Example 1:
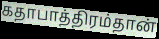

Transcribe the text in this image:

கதாபாத்திரம்தான்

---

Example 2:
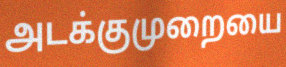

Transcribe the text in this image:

அடக்குமுறையை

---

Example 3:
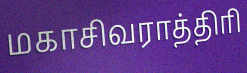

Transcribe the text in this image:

மகாசிவராத்திரி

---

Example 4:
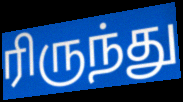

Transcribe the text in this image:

ரிருந்து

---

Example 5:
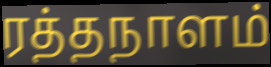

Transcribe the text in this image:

ரத்தநாளம்